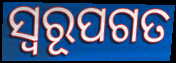
ସ୍ଵରୂପଗତ